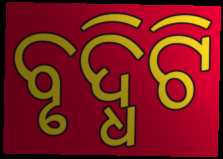
ବୃଦ୍ଧିଟି